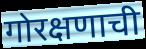
गोरक्षणाची